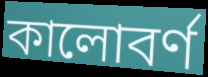
কালোবর্ণ